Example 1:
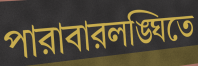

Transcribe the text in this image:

পারাবারলঙ্ঘিতে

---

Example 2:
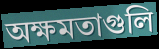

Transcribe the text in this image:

অক্ষমতাগুলি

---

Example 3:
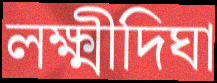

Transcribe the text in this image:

লক্ষ্মীদিঘা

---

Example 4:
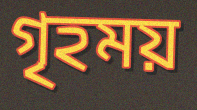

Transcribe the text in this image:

গৃহময়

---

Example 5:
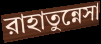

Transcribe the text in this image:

রাহাতুন্নেসা